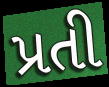
પ્રતી